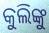
କୁଲିଙ୍କୁ